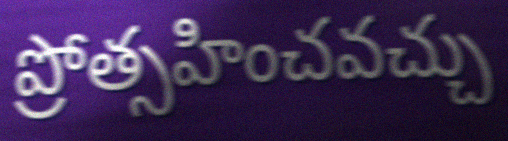
ప్రోత్సహించవచ్చు